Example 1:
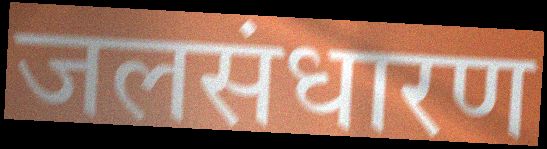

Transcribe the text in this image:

जलसंधारण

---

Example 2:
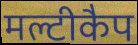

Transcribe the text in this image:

मल्टीकैप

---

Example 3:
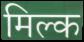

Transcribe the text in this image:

मिल्क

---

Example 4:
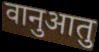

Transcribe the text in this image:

वानुआतु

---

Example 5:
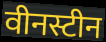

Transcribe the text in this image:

वीनस्टीन